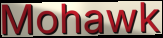
Mohawk